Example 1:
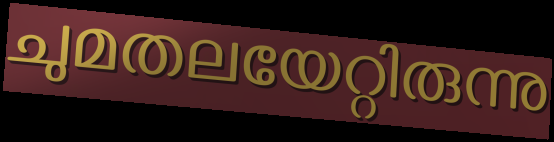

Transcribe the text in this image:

ചുമതലയേറ്റിരുന്നു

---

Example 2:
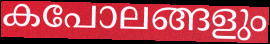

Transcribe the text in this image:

കപോലങ്ങളും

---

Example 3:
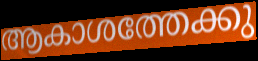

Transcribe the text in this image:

ആകാശത്തേക്കു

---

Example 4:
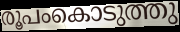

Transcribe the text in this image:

രൂപംകൊടുത്തു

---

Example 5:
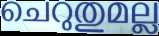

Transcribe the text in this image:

ചെറുതുമല്ല